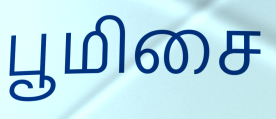
பூமிசை